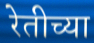
रेतीच्या